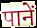
पानें